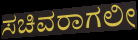
ಸಚಿವರಾಗಲೀ